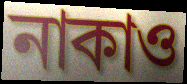
নাকাও